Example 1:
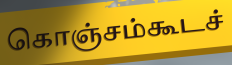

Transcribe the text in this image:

கொஞ்சம்கூடச்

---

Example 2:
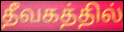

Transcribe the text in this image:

தீவகத்தில்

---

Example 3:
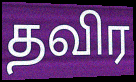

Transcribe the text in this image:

தவிர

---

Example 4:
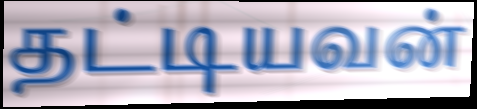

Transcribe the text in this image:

தட்டியவன்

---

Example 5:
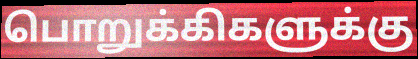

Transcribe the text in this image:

பொறுக்கிகளுக்கு